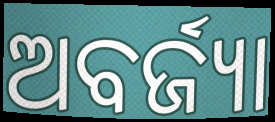
ଅବର୍ଜ୍ୟା